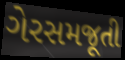
ગેરસમજૂતી